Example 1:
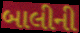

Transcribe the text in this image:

બાલીની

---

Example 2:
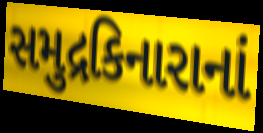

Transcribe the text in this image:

સમુદ્રકિનારાનાં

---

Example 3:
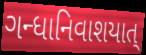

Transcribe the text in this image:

ગન્ધાનિવાશયાત્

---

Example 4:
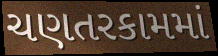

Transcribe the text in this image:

ચણતરકામમાં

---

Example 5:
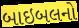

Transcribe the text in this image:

બાઇબલનો